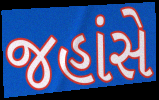
જહાંસે